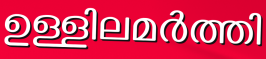
ഉള്ളിലമർത്തി